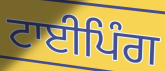
ਟਾਈਪਿੰਗ